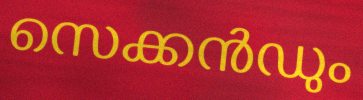
സെക്കൻഡും